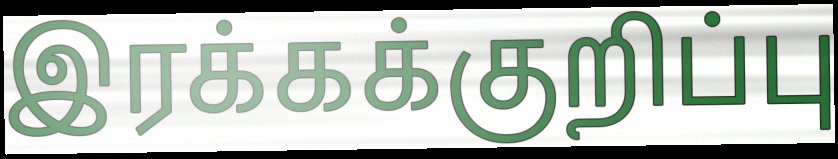
இரக்கக்குறிப்பு